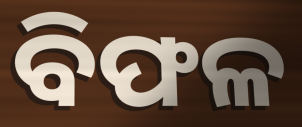
ବିଫଳ